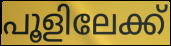
പൂളിലേക്ക്